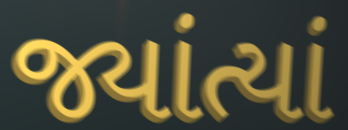
જ્યાંત્યાં